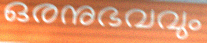
ഒരനുഭവവും